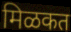
मिळकत